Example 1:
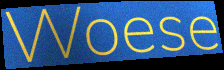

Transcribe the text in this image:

Woese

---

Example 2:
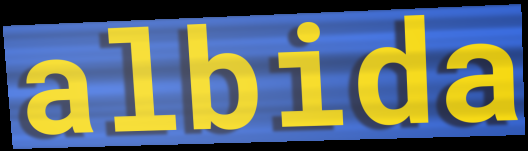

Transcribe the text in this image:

albida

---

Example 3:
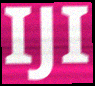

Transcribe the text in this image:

IJI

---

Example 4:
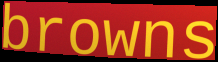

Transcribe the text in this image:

browns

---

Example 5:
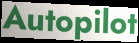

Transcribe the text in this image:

Autopilot